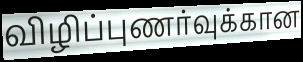
விழிப்புணர்வுக்கான